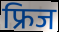
फ्रिज